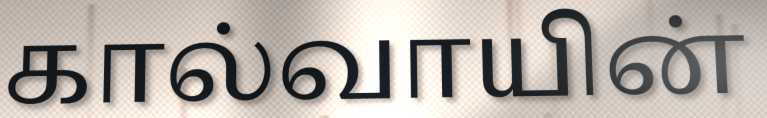
கால்வாயின்